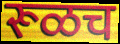
रूळच